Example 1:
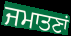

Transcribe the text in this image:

ਜਮਾਤਣਾਂ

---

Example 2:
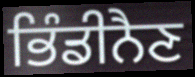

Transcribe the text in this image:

ਭਿੰਡੀਨੈਣ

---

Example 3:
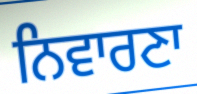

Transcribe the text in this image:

ਨਿਵਾਰਣਾ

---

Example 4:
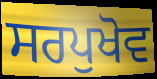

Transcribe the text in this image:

ਸਰਪੁਖੋਵ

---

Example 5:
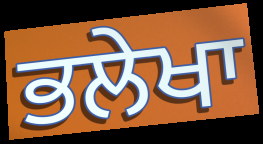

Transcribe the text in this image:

ਭਲੇਖਾ